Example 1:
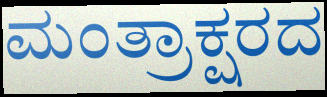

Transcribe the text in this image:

ಮಂತ್ರಾಕ್ಷರದ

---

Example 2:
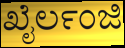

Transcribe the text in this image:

ಖೈರ್ಲಂಜಿ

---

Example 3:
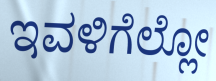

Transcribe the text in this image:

ಇವಳಿಗೆಲ್ಲೋ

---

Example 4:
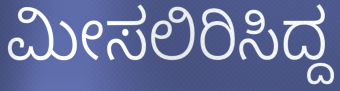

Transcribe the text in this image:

ಮೀಸಲಿರಿಸಿದ್ದ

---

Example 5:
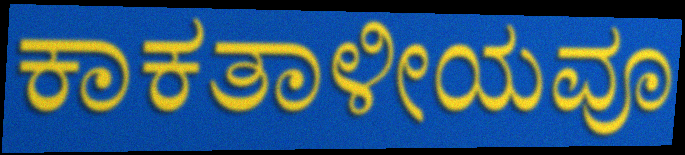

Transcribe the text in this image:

ಕಾಕತಾಳೀಯವೂ